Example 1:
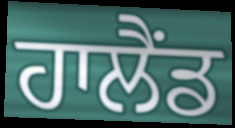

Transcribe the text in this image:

ਹਾਲੈਂਡ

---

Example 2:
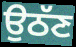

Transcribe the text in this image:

ਉਠੱਣ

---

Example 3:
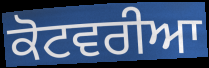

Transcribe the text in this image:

ਕੋਟਵਰੀਆ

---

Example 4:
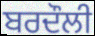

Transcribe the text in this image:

ਬਰਦੌਲੀ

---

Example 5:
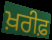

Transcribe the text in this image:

ਖ਼ਰੀਫ਼